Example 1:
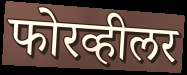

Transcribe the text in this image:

फोरव्हीलर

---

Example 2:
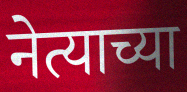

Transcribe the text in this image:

नेत्याच्या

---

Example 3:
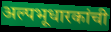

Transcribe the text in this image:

अल्पभूधारकांची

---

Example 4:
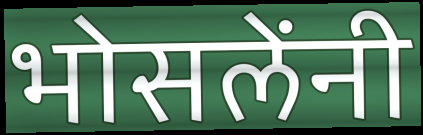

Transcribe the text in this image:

भोसलेंनी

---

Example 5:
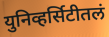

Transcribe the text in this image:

युनिव्हर्सिटीतलं